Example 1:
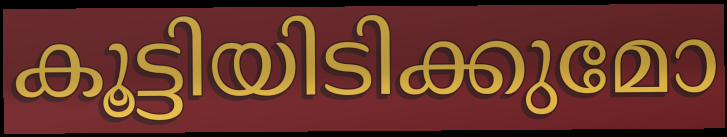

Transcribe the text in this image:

കൂട്ടിയിടിക്കുമോ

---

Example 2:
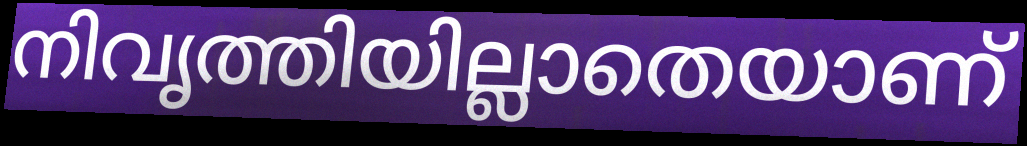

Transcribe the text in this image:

നിവൃത്തിയില്ലാതെയാണ്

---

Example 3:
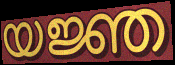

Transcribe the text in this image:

യജ്ഞ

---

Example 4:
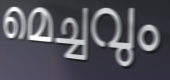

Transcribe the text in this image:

മെച്ചവും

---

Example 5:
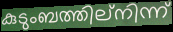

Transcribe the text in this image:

കുടുംബത്തില്നിന്ന്